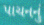
પાચનનું